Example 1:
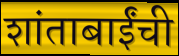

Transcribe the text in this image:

शांताबाईंची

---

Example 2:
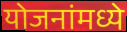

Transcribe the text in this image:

योजनांमध्ये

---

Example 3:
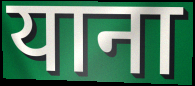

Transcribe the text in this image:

याना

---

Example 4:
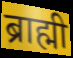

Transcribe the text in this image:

ब्राह्मी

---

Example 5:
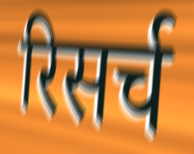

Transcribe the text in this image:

रिसर्च